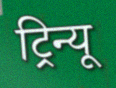
ट्रिन्यू